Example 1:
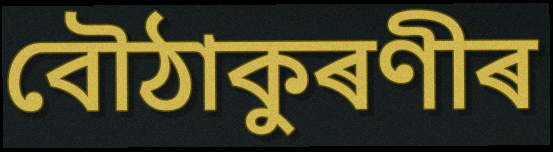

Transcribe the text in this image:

বৌঠাকুৰণীৰ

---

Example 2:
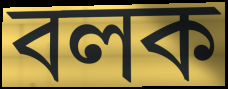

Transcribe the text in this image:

বলক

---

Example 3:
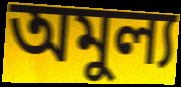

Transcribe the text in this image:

অমুল্য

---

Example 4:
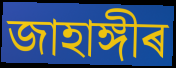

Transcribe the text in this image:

জাহাঙ্গীৰ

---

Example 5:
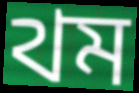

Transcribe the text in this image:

থম